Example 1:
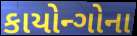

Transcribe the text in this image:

કાયોન્ગોના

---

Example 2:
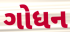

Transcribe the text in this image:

ગોધન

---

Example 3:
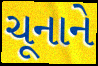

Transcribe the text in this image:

ચૂનાને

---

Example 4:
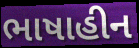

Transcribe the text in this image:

ભાષાહીન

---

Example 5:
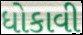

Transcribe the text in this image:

ધોકાવી